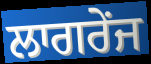
ਲਾਗਰੇਂਜ